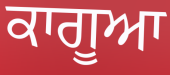
ਕਾਗੂਆ